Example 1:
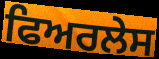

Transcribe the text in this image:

ਫਿਅਰਲੇਸ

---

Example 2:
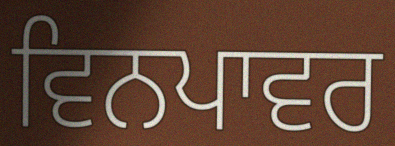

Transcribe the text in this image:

ਵਿਨਪਾਵਰ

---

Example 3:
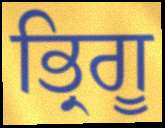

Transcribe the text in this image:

ਭ੍ਰਿਗੂ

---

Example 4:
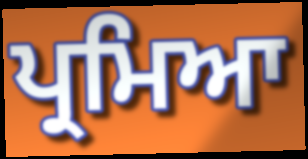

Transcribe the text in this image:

ਪ੍ਰਮਿਆ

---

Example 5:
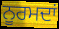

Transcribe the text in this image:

ਨੂਰਮਦਾਂ